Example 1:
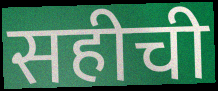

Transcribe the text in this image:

सहीची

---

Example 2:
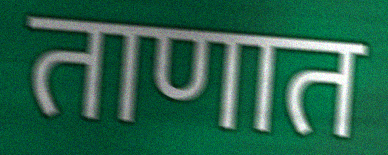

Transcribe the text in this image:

ताणात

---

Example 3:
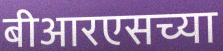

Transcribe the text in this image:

बीआरएसच्या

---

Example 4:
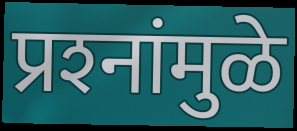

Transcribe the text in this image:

प्रश्‍नांमुळे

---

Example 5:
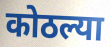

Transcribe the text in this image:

कोठल्या